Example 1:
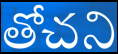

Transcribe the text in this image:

తోచని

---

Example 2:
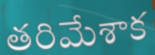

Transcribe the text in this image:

తరిమేశాక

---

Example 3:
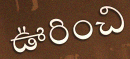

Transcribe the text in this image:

ఊరించి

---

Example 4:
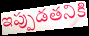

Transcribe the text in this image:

ఇప్పుడతనికి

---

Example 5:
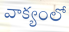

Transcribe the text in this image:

వాక్యంలో